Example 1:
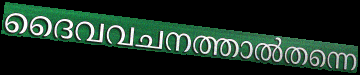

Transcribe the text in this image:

ദൈവവചനത്താൽതന്നെ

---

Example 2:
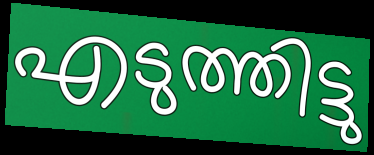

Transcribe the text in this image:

എടുത്തിട്ടു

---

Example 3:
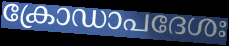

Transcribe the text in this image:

ക്രോഡാപദേശഃ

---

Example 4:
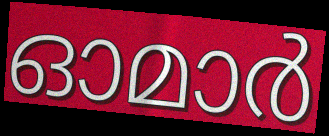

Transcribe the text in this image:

ഓമാർ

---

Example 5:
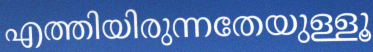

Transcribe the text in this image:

എത്തിയിരുന്നതേയുള്ളൂ